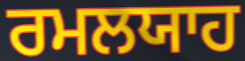
ਰਮਲਯਾਹ